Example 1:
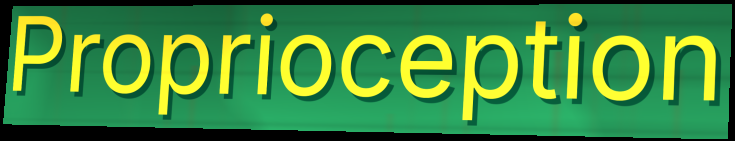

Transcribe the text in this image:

Proprioception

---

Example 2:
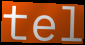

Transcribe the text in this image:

tel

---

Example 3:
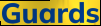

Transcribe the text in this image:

Guards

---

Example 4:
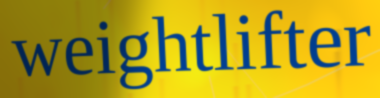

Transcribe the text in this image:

weightlifter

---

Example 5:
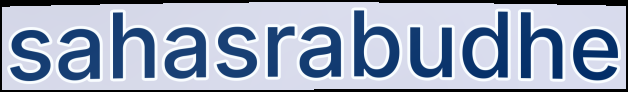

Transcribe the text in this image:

sahasrabudhe